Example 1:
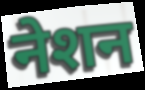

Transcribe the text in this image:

नेशन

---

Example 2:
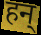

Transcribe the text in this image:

हन्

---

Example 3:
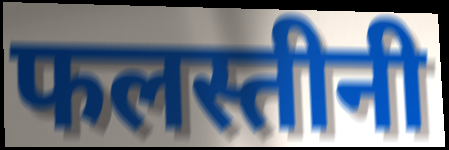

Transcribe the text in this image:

फलस्तीनी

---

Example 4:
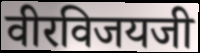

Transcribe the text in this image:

वीरविजयजी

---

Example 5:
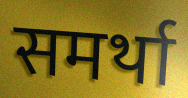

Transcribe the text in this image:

समर्था